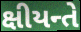
ક્ષીયન્તે